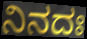
ನಿನದಃ